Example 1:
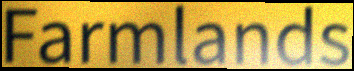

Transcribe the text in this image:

Farmlands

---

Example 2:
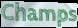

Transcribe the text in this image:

Champs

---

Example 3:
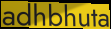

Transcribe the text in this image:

adhbhuta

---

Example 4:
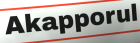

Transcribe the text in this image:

Akapporul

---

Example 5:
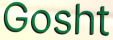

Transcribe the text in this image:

Gosht